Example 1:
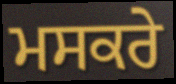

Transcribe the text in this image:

ਮਸਕਰੇ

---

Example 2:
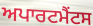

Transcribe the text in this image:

ਅਪਾਰਟਮੈਂਟਸ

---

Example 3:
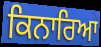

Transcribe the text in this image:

ਕਿਨਾਰਿਆ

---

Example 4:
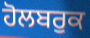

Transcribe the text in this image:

ਹੋਲਬਰੁਕ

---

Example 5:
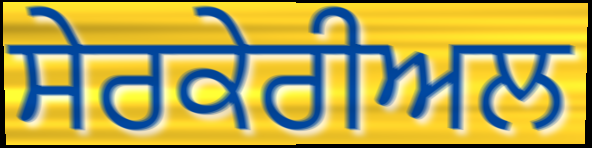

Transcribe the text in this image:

ਸੇਰਕੇਰੀਅਲ